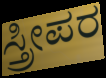
ಸ್ತ್ರೀಪರ